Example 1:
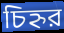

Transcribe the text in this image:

চিহ্নর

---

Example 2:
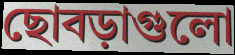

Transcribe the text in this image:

ছোবড়াগুলো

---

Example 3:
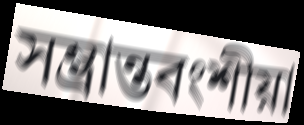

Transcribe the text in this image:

সম্ভ্রান্তবংশীয়া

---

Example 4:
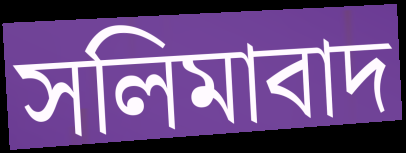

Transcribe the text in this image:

সলিমাবাদ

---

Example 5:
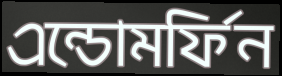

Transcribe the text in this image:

এন্ডোমর্ফিন